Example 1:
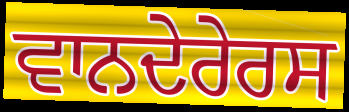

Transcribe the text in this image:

ਵਾਨਦੇਰੇਰਸ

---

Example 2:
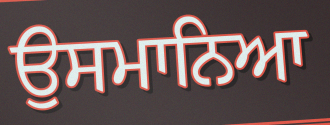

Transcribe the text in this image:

ਉਸਮਾਨਿਆ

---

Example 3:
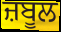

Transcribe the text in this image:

ਜ਼ਬੂਲ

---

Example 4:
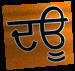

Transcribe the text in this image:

ਦਊ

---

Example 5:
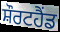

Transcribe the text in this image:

ਸ਼ੌਰਟਹੈਂਡ